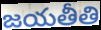
జయతీతి